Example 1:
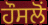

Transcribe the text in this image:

ਹੌਸਲੋਂ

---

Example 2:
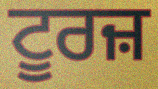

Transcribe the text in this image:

ਟੂਰਜ਼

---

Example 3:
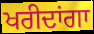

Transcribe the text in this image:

ਖਰੀਦਾਂਗਾ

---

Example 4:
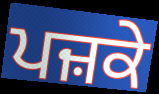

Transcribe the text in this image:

ਪਜ਼ਕੇ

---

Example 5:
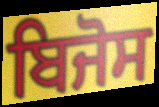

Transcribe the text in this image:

ਬਿਜੋਸ